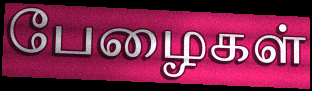
பேழைகள்